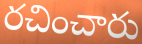
రచించారు